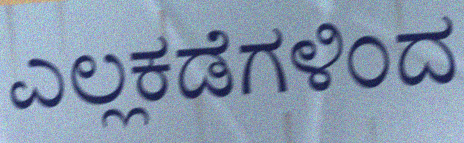
ಎಲ್ಲಕಡೆಗಳಿಂದ